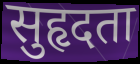
सुहृदता